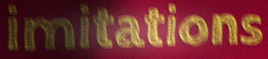
imitations